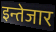
इन्तेजार